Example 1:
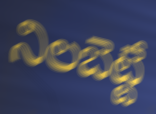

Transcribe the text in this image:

నిలబెట్టే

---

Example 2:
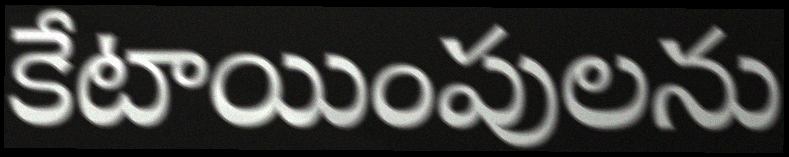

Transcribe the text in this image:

కేటాయింపులను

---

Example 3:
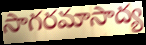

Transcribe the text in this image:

సాగరమాసాద్య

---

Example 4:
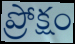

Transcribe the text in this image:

ప్రోక్షం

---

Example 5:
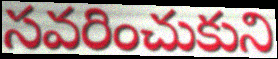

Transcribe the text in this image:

సవరించుకుని